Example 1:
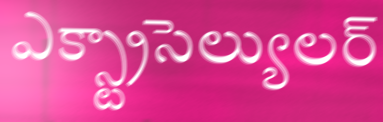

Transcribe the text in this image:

ఎక్స్ట్రాసెల్యులర్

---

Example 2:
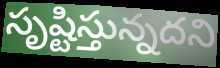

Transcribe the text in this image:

సృష్టిస్తున్నదని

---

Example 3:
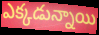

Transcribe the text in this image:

ఎక్కడున్నాయి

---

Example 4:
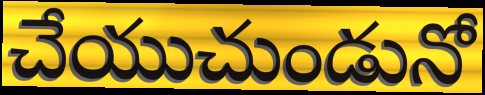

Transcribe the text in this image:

చేయుచుండునో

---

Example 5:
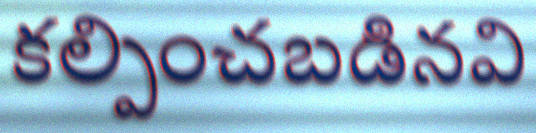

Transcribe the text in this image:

కల్పించబడినవి